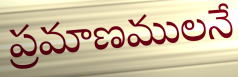
ప్రమాణములనే